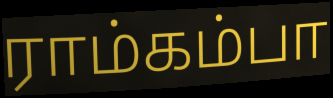
ராம்கம்பா